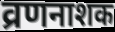
व्रणनाशक